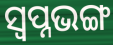
ସ୍ୱପ୍ନଭଙ୍ଗ